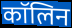
कॉलिन